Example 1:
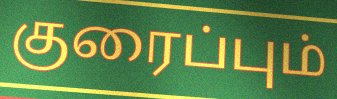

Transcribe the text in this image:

குரைப்பும்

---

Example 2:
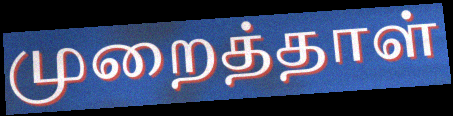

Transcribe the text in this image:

முறைத்தாள்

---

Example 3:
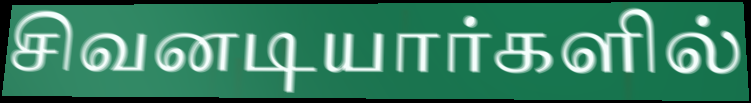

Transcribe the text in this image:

சிவனடியார்களில்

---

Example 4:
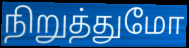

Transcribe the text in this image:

நிறுத்துமோ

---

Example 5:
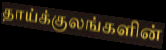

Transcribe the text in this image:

தாய்க்குலங்களின்